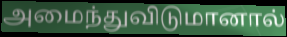
அமைந்துவிடுமானால்